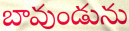
బావుండును